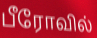
பீரோவில்